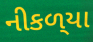
નીકળ્‌યા